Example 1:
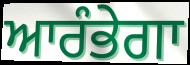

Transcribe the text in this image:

ਆਰੰਭੇਗਾ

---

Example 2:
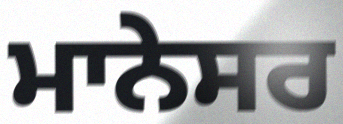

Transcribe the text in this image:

ਮਾਨੇਸਰ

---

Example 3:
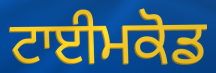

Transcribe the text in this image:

ਟਾਈਮਕੋਡ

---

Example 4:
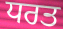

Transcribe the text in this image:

ਧਰਤ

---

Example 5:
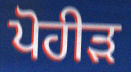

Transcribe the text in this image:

ਪੋਹੀੜ